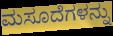
ಮಸೂದೆಗಳನ್ನು